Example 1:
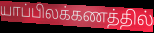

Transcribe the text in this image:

யாப்பிலக்கணத்தில்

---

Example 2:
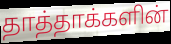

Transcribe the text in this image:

தாத்தாக்களின்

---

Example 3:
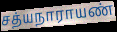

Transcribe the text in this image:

சத்யநாராயண்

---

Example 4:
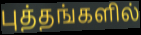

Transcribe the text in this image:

புத்தங்களில்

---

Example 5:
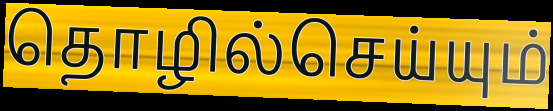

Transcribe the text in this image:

தொழில்செய்யும்